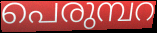
പെരുമ്പറ